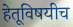
हेतूविषयीच